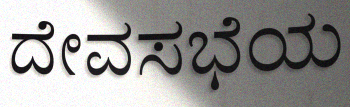
ದೇವಸಭೆಯ